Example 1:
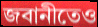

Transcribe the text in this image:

জবানীতেও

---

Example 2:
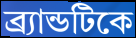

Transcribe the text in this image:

ব্র্যান্ডটিকে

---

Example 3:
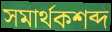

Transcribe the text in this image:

সমার্থকশব্দ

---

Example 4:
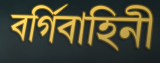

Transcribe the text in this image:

বর্গিবাহিনী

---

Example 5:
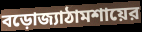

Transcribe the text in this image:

বড়োজ্যাঠামশায়ের